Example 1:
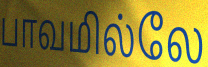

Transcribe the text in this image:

பாவமில்லே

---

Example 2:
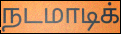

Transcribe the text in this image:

நடமாடிக்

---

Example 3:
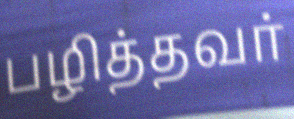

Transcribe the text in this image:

பழித்தவர்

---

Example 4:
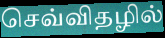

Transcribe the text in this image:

செவ்விதழில்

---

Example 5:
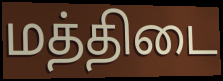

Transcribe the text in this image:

மத்திடை